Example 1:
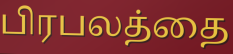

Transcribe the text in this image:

பிரபலத்தை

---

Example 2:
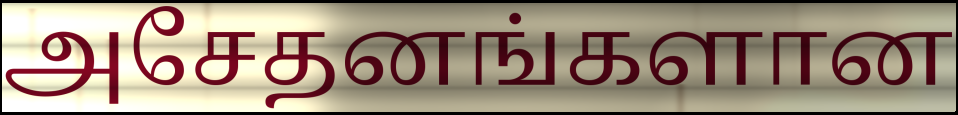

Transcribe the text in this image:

அசேதனங்களான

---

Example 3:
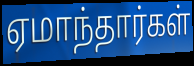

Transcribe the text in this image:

ஏமாந்தார்கள்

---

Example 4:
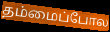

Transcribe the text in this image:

தம்மைப்போல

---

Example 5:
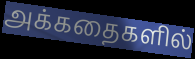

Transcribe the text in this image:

அக்கதைகளில்